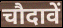
चौदावें